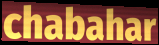
chabahar